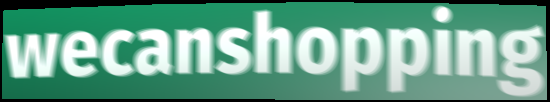
wecanshopping